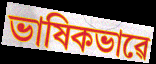
ভাষিকভাৱে